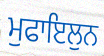
ਮੁਫਾਇਲੁਨ